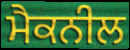
ਮੈਕਨੀਲ